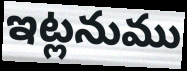
ఇట్లనుము